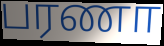
பரணா